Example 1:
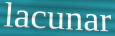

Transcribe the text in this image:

lacunar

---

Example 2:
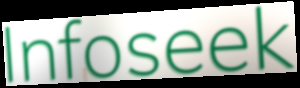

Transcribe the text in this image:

Infoseek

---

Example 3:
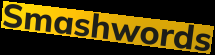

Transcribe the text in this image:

Smashwords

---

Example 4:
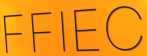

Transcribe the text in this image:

FFIEC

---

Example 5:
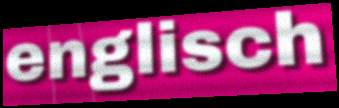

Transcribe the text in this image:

englisch